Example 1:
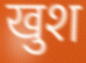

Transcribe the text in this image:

खुश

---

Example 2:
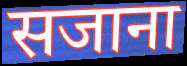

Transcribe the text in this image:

सजाना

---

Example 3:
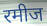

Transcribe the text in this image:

रमीज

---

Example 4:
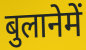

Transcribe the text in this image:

बुलानेमें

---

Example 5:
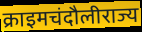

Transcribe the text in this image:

क्राइमचंदौलीराज्य